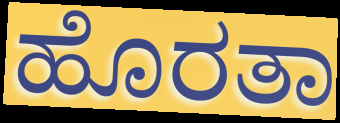
ಹೊರತಾ